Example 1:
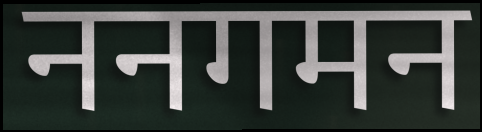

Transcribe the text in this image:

ननगमन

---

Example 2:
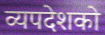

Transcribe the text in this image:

व्यपदेशको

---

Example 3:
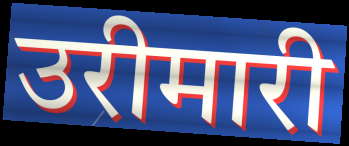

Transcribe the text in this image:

उरीमारी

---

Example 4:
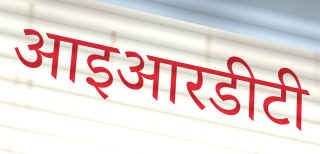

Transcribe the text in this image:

आइआरडीटी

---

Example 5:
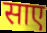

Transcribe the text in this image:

साए